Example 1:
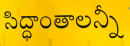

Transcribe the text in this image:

సిద్ధాంతాలన్నీ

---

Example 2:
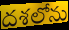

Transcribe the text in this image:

దశలోను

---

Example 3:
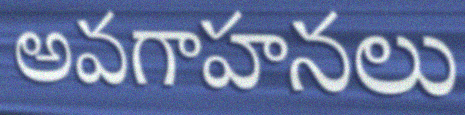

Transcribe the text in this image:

అవగాహనలు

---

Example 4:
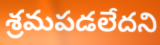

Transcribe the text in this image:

శ్రమపడలేదని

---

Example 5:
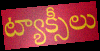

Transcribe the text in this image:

ట్యాక్సీలు